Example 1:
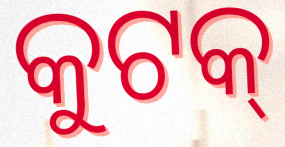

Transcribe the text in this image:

କୁଟକ୍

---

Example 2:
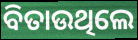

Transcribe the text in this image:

ବିତାଉଥିଲେ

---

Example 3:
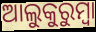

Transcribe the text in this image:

ଆଲୁକୁରୁମ୍ବା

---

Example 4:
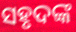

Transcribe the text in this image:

ସହୃଦଙ୍କ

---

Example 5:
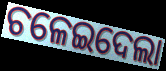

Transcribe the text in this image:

ଚଳେଇଦେଲା